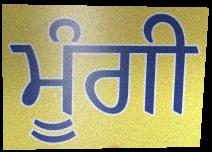
ਮੂੰਗੀ